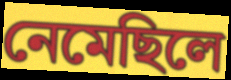
নেমেছিলে